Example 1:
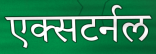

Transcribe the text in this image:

एक्सटर्नल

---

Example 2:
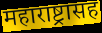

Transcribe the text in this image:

महाराष्ट्रासह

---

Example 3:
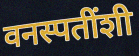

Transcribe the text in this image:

वनस्पतींशी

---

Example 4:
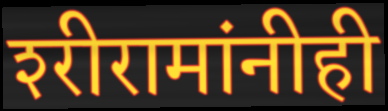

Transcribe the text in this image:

श्रीरामांनीही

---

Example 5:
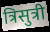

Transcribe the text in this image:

त्रिसुत्री